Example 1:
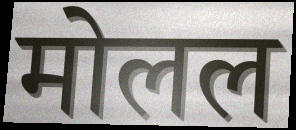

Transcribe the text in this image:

मोलल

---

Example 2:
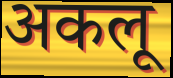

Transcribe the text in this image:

अकलू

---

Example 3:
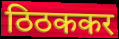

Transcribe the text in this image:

ठिठककर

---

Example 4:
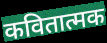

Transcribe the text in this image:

कवितात्मक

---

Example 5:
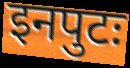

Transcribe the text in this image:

इनपुटः